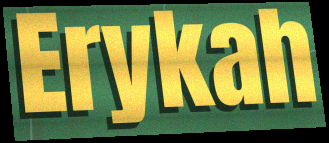
Erykah